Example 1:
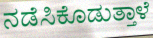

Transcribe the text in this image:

ನಡೆಸಿಕೊಡುತ್ತಾಳೆ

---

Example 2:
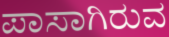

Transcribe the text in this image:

ಪಾಸಾಗಿರುವ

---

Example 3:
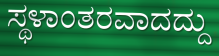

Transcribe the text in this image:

ಸ್ಥಳಾಂತರವಾದದ್ದು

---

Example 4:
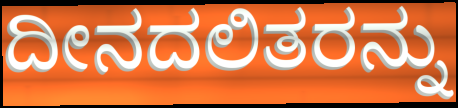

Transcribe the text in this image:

ದೀನದಲಿತರನ್ನು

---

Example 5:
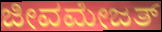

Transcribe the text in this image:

ಜೀವಮೇಜತ್